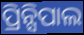
ପ୍ରିନ୍ସିପାଲ